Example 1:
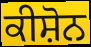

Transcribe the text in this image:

ਕੀਸ਼ੋਨ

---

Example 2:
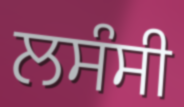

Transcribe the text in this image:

ਲਸੰਸੀ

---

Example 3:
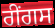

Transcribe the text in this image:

ਰੀਂਗਸ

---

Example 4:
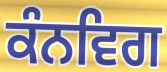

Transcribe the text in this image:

ਕੰਨਵਿਗ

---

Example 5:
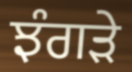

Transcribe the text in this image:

ਝੰਗੜੇ